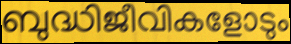
ബുദ്ധിജീവികളോടും